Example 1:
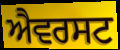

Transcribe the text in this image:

ਐਵਰਸਟ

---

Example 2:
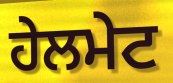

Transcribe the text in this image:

ਹੇਲਮੇਟ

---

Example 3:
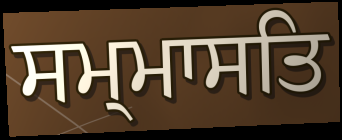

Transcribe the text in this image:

ਸਮ੍ਮਾਸਤਿ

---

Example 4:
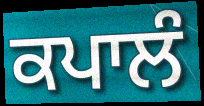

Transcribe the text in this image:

ਕਪਾਲੰ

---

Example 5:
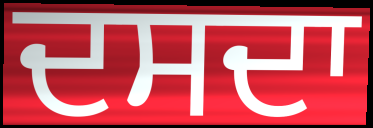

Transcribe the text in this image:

ਦਸਦਾ